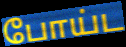
போய்ட